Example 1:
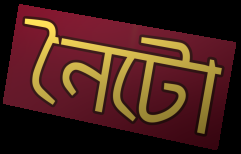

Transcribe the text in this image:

নৈটো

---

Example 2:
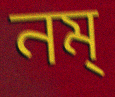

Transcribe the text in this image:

নম্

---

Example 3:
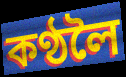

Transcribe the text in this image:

কণ্ঠলৈ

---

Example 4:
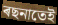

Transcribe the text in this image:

ৰছনাতেই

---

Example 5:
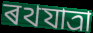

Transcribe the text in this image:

ৰথযাত্ৰা